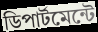
ডিপার্টমেন্টে